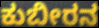
ಕುಬೀರನ